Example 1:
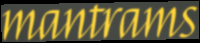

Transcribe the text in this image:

mantrams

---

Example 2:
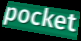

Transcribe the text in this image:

pocket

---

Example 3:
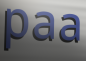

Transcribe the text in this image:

paa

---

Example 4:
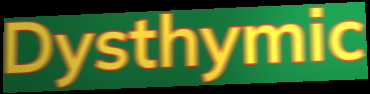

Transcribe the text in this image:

Dysthymic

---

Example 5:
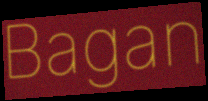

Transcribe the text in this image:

Bagan